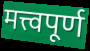
मत्त्वपूर्ण